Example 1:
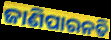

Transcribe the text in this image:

ଜାଣିପାରନତି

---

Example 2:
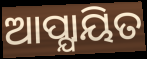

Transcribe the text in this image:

ଆପ୍ଯାୟିତ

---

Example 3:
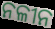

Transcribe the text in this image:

ନଳୀନ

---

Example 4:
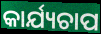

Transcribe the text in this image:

କାର୍ଯ୍ୟଚାପ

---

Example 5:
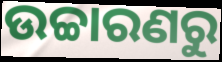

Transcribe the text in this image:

ଉଚ୍ଚାରଣରୁ